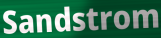
Sandstrom